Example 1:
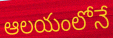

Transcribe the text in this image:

ఆలయంలోనే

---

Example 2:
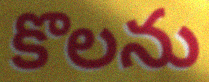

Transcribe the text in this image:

కొలను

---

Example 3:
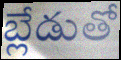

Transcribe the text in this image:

బ్లేడుతో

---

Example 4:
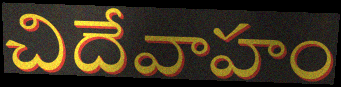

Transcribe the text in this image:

చిదేవాహం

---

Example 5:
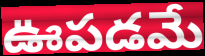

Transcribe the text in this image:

ఊపడమే